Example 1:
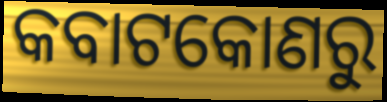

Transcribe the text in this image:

କବାଟକୋଣରୁ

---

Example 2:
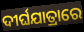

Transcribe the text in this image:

ଦୀର୍ଘଯାତ୍ରାରେ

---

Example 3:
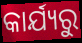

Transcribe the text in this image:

କାର୍ଯ୍ୟରୁ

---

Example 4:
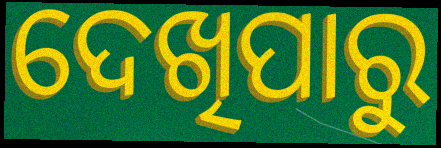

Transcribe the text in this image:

ଦେଖିପାରୁ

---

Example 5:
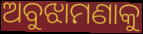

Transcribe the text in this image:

ଅବୁଝାମଣାକୁ